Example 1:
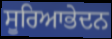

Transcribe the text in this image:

ਸੂਰਿਆਭੇਦਨ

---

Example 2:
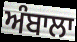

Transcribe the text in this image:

ਅੰਬਾਲਾ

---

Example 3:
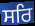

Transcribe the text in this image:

ਸਰਿ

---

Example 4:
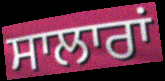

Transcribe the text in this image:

ਸਾਲਾਰਾਂ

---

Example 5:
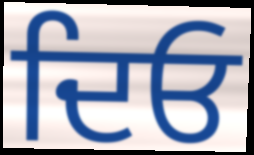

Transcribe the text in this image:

ਦਿਓ